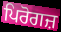
ਪਿਰੋਗਜ਼